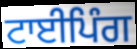
ਟਾਈਪਿੰਗ